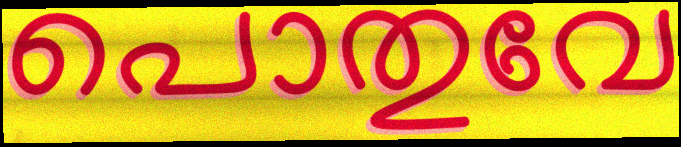
പൊതുവേ